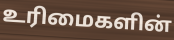
உரிமைகளின்